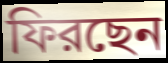
ফিরছেন